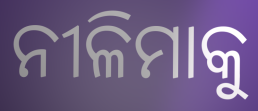
ନୀଳିମାକୁ